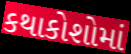
કથાકોશોમાં